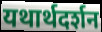
यथार्थदर्शन